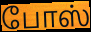
போஸ்